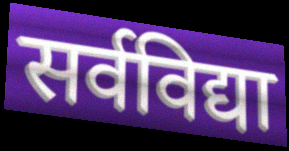
सर्वविद्या